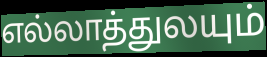
எல்லாத்துலயும்